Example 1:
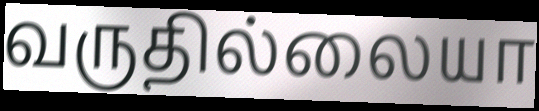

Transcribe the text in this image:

வருதில்லையா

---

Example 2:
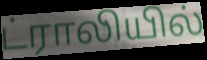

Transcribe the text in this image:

ட்ராலியில்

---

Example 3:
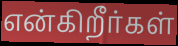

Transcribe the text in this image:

என்கிறீர்கள்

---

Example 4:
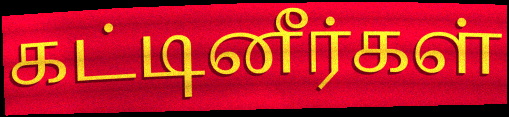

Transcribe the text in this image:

கட்டினீர்கள்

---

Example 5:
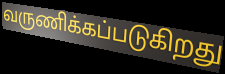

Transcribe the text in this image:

வருணிக்கப்படுகிறது